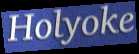
Holyoke